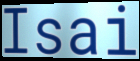
Isai